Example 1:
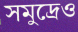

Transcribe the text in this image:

সমুদ্রেও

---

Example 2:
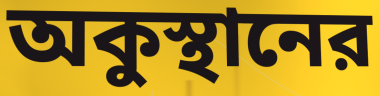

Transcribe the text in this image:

অকুস্থানের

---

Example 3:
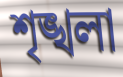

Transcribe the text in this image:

শৃঙ্খলা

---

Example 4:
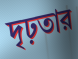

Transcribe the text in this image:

দৃঢ়তার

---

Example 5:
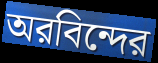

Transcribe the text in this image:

অরবিন্দের